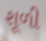
શૂળી